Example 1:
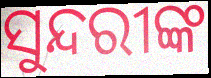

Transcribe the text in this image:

ସୁନ୍ଦରୀଙ୍କ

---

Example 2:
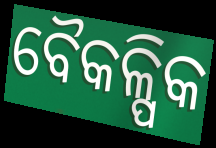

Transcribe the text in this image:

ବୈକଳ୍ପିକ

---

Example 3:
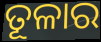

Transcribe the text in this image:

ତୂଳାର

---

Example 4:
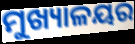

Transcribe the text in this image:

ମୁଖ୍ୟାଳୟର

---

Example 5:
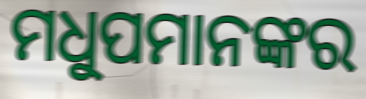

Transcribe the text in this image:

ମଧୁପମାନଙ୍କର